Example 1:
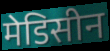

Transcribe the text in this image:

मेडिसीन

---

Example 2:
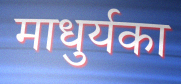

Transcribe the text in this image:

माधुर्यका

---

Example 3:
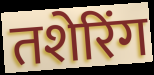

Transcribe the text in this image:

तशेरिंग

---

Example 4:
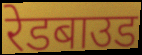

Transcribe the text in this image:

रेडबाउड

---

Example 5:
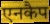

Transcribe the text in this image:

एनकैप